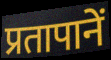
प्रतापानें